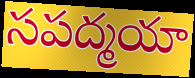
సపద్మయా